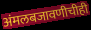
अंमलबजावणीचीही